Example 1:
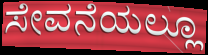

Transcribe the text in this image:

ಸೇವನೆಯಲ್ಲೂ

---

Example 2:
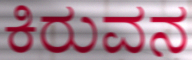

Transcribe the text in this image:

ಕಿರುವನ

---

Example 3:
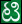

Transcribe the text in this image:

ಟಿ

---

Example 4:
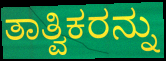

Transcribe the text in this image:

ತಾತ್ವಿಕರನ್ನು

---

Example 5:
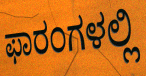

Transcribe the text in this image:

ಫಾರಂಗಳಲ್ಲಿ